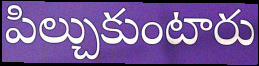
పిల్చుకుంటారు